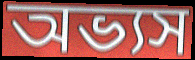
অভ্যস